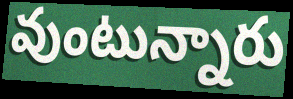
వుంటున్నారు